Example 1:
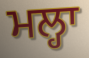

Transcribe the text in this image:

ਮਲ੍ਹਾ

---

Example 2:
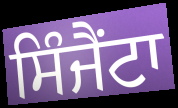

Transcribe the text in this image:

ਸਿੰਜੈਂਟਾ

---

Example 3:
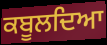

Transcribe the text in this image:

ਕਬੂਲਦਿਆ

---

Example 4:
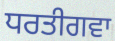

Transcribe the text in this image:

ਧਰਤੀਗਵਾ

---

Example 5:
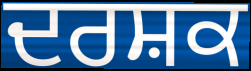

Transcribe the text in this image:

ਦਰਸ਼ਕ